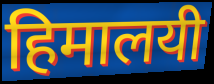
हिमालयी